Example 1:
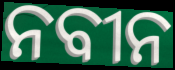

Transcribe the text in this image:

ନବୀନ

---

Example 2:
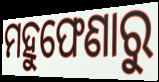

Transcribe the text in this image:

ମହୁଫେଣାରୁ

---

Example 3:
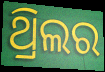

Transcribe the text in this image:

ଥ୍ରିଲର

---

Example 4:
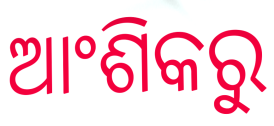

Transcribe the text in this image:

ଆଂଶିକରୁ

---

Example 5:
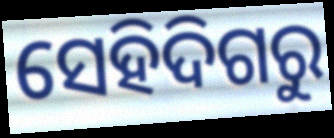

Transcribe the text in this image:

ସେହିଦିଗରୁ